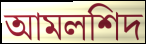
আমলশিদ